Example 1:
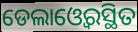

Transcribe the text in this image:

ଡେଲାଓ୍ବେରସ୍ଥିତ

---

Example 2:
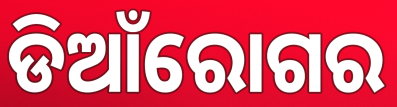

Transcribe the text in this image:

ଡିଆଁରୋଗର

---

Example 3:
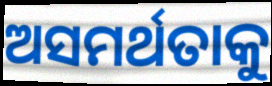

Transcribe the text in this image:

ଅସମର୍ଥତାକୁ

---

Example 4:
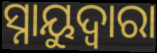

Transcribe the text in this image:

ସ୍ନାୟୁଦ୍ଵାରା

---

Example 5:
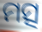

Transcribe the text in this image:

ମତ୍ସ